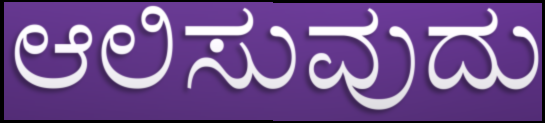
ಆಲಿಸುವುದು